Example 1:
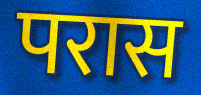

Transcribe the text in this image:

परास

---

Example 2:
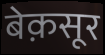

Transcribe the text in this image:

बेक़सूर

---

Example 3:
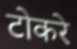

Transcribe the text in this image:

टोकरे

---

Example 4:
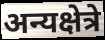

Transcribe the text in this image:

अन्यक्षेत्रे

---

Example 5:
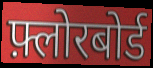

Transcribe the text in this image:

फ़्लोरबोर्ड